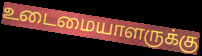
உடைமையாளருக்கு